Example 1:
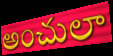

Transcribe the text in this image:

అంచులా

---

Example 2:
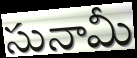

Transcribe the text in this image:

సునామీ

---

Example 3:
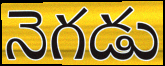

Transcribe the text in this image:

నెగడు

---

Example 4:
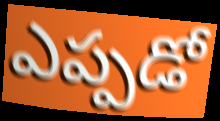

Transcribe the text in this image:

ఎప్పడో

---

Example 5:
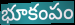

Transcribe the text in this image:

భూకంపం